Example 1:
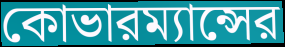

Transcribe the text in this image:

কোভারম্যান্সের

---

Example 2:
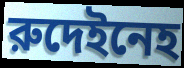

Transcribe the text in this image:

রুদেইনেহ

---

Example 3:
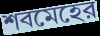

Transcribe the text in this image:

শবমেহের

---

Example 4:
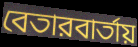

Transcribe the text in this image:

বেতারবার্তায়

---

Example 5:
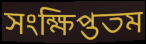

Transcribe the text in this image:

সংক্ষিপ্ততম